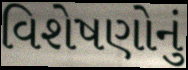
વિશેષણોનું